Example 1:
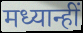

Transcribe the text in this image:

मध्यान्हीं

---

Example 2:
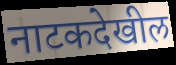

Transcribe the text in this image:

नाटकदेखील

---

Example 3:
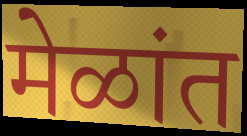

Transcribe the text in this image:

मेळांत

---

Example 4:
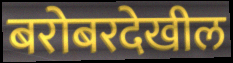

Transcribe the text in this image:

बरोबरदेखील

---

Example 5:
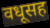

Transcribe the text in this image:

वधूसह